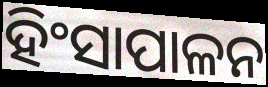
ହିଂସାପାଳନ